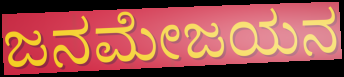
ಜನಮೇಜಯನ